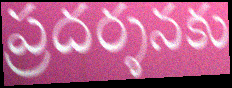
ప్రదర్శనకు